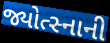
જ્યોત્સ્નાની